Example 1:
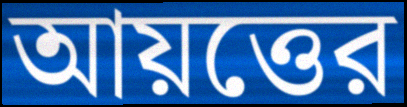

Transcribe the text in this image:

আয়ত্তের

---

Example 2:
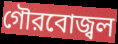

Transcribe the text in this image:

গৌরবোজ্বল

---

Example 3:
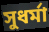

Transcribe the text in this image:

সুধর্মা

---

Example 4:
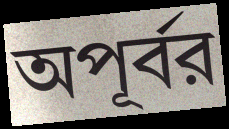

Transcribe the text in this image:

অপূর্বর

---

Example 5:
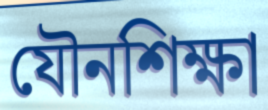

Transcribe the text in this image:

যৌনশিক্ষা